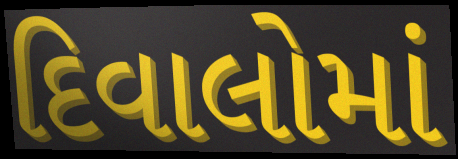
દિવાલોમાં